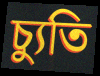
চ্যুতি